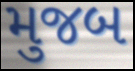
મુજબ